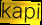
kapi